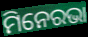
ମିନେରଭା